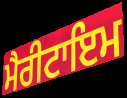
ਮੈਰੀਟਾਇਮ